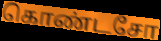
கொண்டசோ